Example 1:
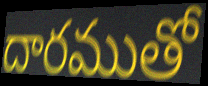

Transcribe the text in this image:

దారముతో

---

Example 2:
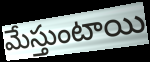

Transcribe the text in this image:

మేస్తుంటాయి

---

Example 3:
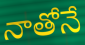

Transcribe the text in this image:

నాతోనే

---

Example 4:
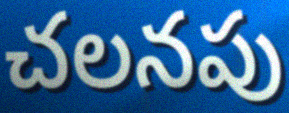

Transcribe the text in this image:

చలనపు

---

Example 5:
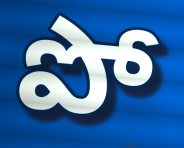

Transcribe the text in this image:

పో